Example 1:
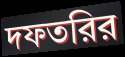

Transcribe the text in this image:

দফতরির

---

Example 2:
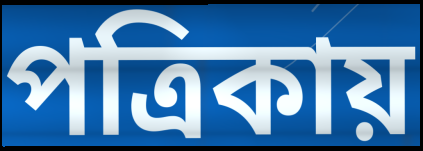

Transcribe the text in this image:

পত্রিকায়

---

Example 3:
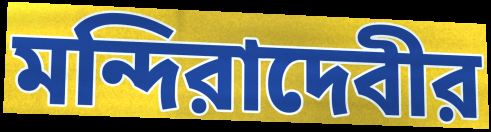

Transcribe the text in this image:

মন্দিরাদেবীর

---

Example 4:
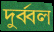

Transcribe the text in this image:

দুর্ব্বল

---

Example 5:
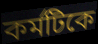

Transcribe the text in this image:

কর্মটিকে